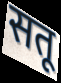
सतू